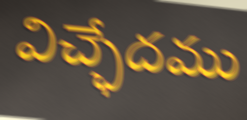
విచ్ఛేదము